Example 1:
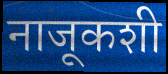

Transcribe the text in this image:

नाजूकशी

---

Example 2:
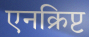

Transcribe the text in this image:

एनक्रिप्ट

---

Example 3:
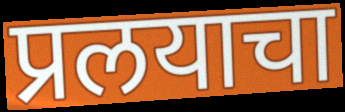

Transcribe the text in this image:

प्रलयाचा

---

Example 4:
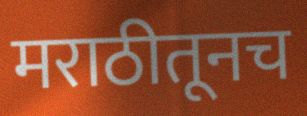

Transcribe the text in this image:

मराठीतूनच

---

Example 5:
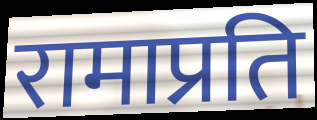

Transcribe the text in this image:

रामाप्रति